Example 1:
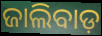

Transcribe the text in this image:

ଜାଲିବାଡ଼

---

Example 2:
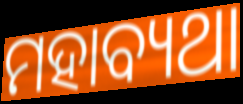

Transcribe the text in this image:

ମହାବ୍ୟଥା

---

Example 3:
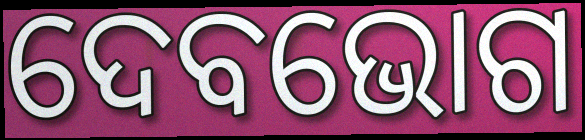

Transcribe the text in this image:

ଦେବଭୋଗ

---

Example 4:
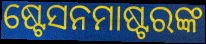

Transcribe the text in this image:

ଷ୍ଟେସନମାଷ୍ଟରଙ୍କ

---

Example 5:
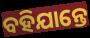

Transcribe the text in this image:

ବହିଯାନ୍ତେ